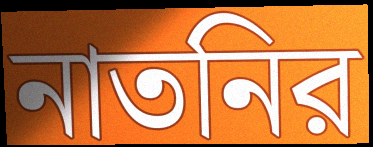
নাতনির